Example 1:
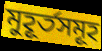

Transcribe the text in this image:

মুহূৰ্তসমূহ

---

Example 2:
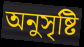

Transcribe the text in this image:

অনুসৃষ্টি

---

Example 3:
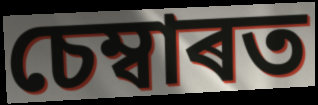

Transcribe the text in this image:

চেম্বাৰত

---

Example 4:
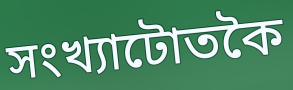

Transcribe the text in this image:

সংখ্যাটোতকৈ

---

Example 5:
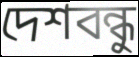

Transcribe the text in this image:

দেশবন্ধু